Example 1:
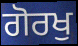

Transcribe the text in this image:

ਗੋਰਖੁ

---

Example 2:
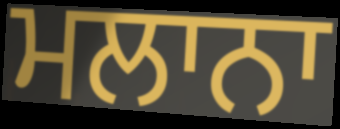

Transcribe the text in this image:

ਮਲਾਨਾ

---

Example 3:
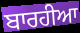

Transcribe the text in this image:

ਬਾਰਹੀਆ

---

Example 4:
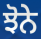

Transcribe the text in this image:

ਝੋਨੇ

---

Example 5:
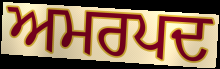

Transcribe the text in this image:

ਅਮਰਪਦ